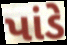
પાંડે